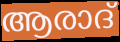
ആരാദ്